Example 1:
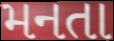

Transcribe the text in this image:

મનતા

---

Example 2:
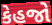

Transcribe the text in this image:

કેહજો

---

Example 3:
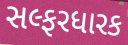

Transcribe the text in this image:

સલ્ફરધારક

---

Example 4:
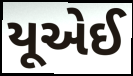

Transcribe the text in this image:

યૂએઈ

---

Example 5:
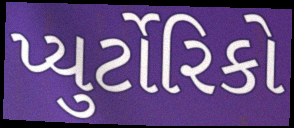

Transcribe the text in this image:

પ્યુર્ટોરિકો